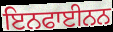
ਇਨਫਾਈਨਨ